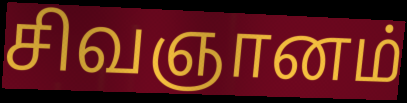
சிவஞானம்